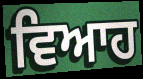
ਵਿਆਹ